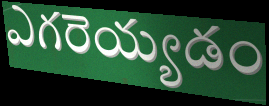
ఎగరెయ్యడం